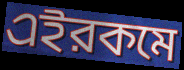
এইরকমে